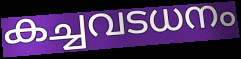
കച്ചവടധനം